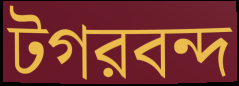
টগরবন্দ